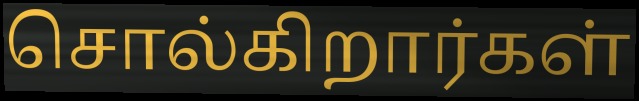
சொல்கிறார்கள்